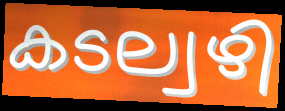
കടല്വഴി